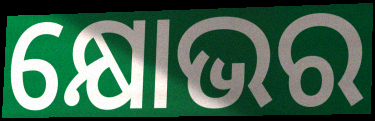
କ୍ଷୋଭର